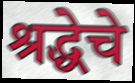
श्रद्धेचे